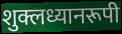
शुक्लध्यानरूपी